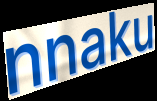
nnaku